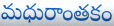
మధురాంతకం